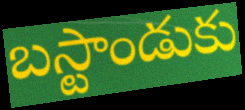
బస్టాండుకు